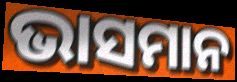
ଭାସମାନ